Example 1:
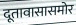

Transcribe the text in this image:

दूतावासासमोर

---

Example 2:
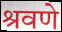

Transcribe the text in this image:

श्रवणे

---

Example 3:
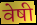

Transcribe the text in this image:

वेषी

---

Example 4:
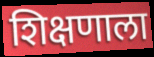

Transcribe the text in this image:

शिक्षणाला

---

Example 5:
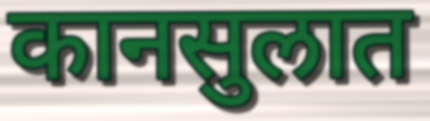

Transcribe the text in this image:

कानसुलात